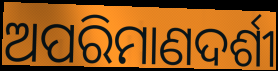
ଅପରିମାଣଦର୍ଶୀ